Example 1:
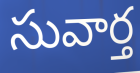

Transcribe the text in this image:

సువార్త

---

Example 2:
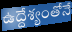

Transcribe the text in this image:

ఉద్దేశ్యంతోనే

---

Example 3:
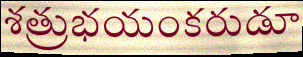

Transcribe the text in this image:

శత్రుభయంకరుడూ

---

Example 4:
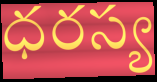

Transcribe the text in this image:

ధరస్య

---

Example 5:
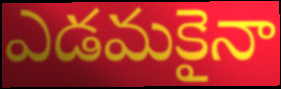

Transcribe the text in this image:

ఎడమకైనా